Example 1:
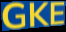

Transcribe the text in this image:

GKE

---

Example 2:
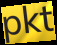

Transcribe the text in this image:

pkt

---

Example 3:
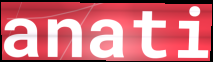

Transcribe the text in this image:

anati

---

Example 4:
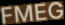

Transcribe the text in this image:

FMEG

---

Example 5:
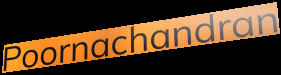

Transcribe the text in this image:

Poornachandran